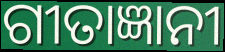
ଗୀତାଜ୍ଞାନୀ